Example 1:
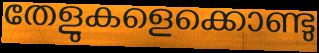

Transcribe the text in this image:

തേളുകളെക്കൊണ്ടു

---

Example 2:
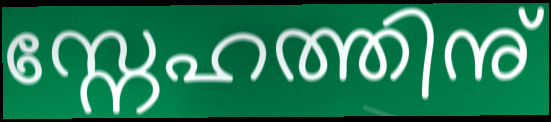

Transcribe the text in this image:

സ്നേഹത്തിനു്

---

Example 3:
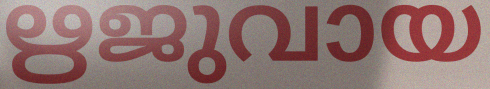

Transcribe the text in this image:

ഋജുവായ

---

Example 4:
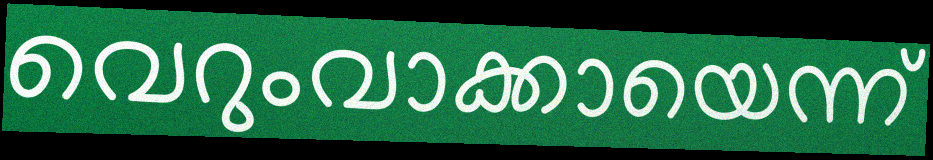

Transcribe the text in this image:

വെറുംവാക്കായെന്ന്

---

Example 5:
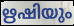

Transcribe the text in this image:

ഋഷിയും